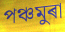
পঞ্চমুৰা